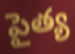
పైత్య